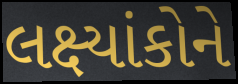
લક્ષ્યાંકોને